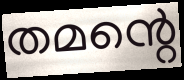
തമന്റെ